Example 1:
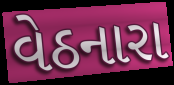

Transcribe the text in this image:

વેઠનારા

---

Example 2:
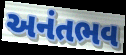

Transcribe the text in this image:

અનંતભવ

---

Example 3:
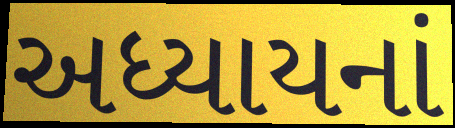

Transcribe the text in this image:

અધ્યાયનાં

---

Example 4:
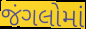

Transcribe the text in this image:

જંગલોમાં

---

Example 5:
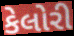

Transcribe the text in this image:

કેલોરી